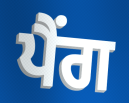
ਪੈਂਗ